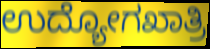
ಉದ್ಯೋಗಖಾತ್ರಿ